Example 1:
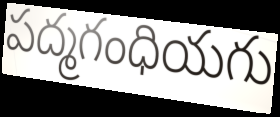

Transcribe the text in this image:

పద్మగంధియగు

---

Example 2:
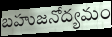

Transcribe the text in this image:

బహుజనోద్యమం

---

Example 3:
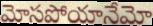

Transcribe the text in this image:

మోసపోయానేమో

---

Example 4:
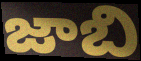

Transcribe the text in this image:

జాబి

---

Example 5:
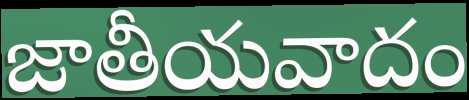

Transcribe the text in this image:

జాతీయవాదం